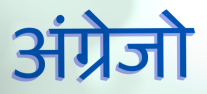
अंग्रेजो